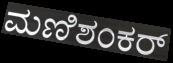
ಮಣಿಶಂಕರ್